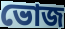
ভোজ